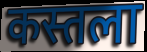
कस्तला